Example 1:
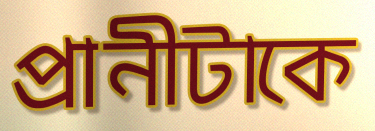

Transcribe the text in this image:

প্রানীটাকে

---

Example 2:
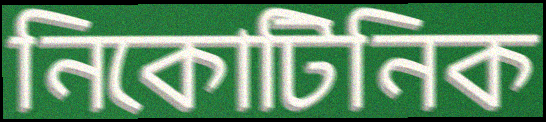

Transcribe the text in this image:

নিকোটিনিক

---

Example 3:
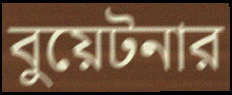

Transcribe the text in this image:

বুয়েটনার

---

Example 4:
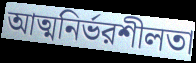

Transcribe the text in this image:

আত্মনির্ভরশীলতা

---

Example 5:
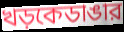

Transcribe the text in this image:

খড়কেডাঙার